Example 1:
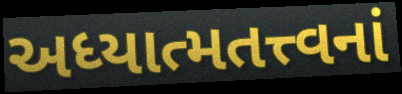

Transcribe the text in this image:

અધ્યાત્મતત્ત્વનાં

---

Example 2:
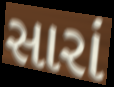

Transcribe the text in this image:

સારાં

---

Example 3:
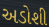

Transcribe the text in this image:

અડોશી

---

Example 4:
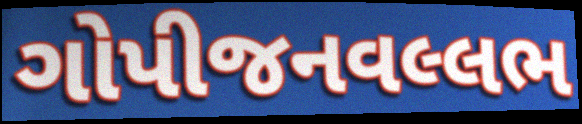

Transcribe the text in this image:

ગોપીજનવલ્લભ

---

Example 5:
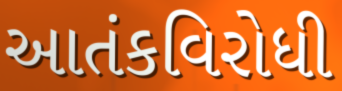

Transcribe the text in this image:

આતંકવિરોધી